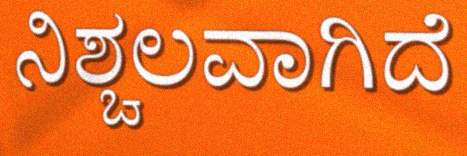
ನಿಶ್ಚಲವಾಗಿದೆ